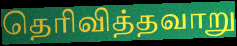
தெரிவித்தவாறு